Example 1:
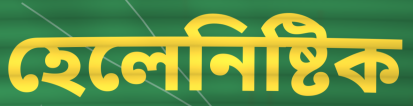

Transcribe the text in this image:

হেলেনিষ্টিক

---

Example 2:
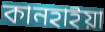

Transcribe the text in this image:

কানহাইয়া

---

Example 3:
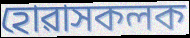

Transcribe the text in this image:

হোৱাসকলক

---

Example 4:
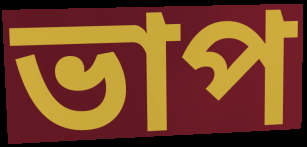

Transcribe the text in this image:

ভাপ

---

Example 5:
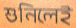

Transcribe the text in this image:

শুনিলেই